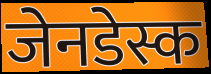
जेनडेस्क